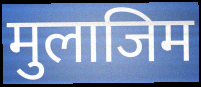
मुलाजिम